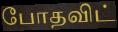
போதவிட்